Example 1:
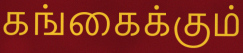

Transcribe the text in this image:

கங்கைக்கும்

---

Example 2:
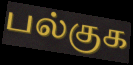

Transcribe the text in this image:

பல்குக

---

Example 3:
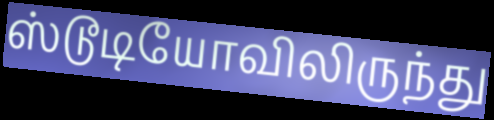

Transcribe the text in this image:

ஸ்டூடியோவிலிருந்து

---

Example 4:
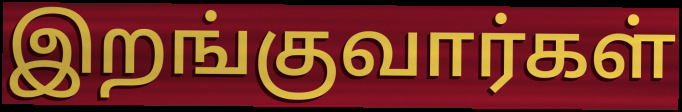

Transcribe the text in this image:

இறங்குவார்கள்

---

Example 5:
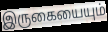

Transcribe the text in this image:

இருகையையும்